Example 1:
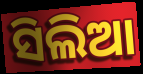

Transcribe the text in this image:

ସିଲିଆ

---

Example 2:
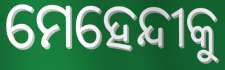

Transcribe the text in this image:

ମେହେନ୍ଦୀକୁ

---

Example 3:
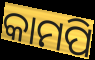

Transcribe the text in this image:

କାମପି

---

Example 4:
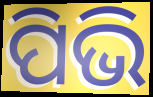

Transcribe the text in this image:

ପିଭି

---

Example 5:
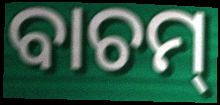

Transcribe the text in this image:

ବାଚମ୍